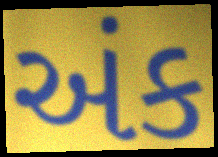
અંક